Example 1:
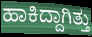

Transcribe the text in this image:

ಹಾಕಿದ್ದಾಗಿತ್ತು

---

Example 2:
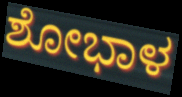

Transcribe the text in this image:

ಶೋಭಾಳ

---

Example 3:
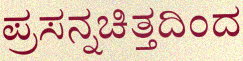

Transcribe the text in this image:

ಪ್ರಸನ್ನಚಿತ್ತದಿಂದ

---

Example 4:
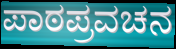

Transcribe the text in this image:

ಪಾಠಪ್ರವಚನ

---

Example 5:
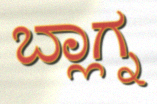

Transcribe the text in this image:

ಬ್ಲಾಗ್ನ